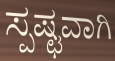
ಸ್ಪಷ್ಟವಾಗಿ